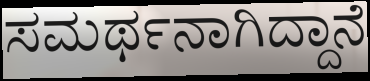
ಸಮರ್ಥನಾಗಿದ್ದಾನೆ